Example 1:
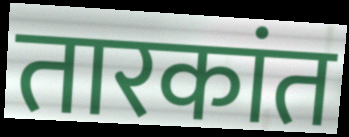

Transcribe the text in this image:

तारकांत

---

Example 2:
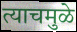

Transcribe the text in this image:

त्याचमुळे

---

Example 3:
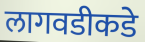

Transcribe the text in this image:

लागवडीकडे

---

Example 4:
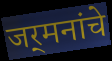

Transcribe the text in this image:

जर्मनांचे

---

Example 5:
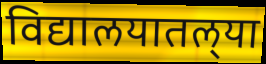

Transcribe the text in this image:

विद्यालयातल्या